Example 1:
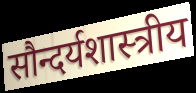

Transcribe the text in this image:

सौन्दर्यशास्त्रीय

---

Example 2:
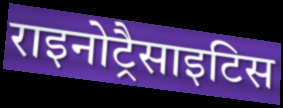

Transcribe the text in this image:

राइनोट्रैसाइटिस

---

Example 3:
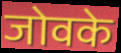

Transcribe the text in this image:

जोवके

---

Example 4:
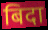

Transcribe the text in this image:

बिदा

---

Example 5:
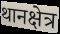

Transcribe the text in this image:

थानक्षेत्र